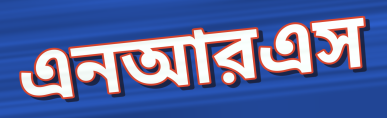
এনআরএস